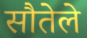
सौतेले